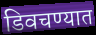
डिवचण्यात